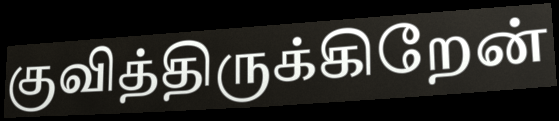
குவித்திருக்கிறேன்